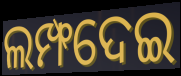
ଲମ୍ଫଦେଇ